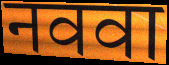
नववा